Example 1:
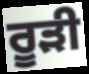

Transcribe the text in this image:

ਰੂੜੀ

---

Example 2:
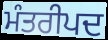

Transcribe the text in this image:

ਮੰਤਰੀਪਦ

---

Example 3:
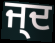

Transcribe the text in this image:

ਜ੍ਦ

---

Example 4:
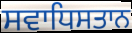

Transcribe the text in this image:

ਸਵਾਧਿਸਤਾਨ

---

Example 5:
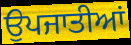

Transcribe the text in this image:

ਉਪਜਾਤੀਆਂ